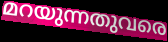
മറയുന്നതുവരെ